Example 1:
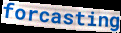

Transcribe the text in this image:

forcasting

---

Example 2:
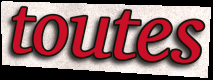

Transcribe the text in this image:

toutes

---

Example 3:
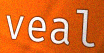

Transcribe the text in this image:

veal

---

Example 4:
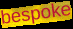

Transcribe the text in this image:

bespoke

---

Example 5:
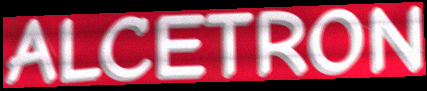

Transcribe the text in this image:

ALCETRON